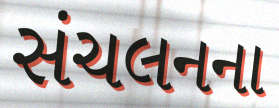
સંચલનના